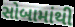
સોબામાંથી